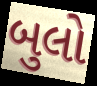
બુલો